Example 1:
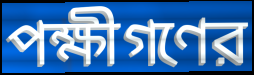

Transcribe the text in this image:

পক্ষীগণের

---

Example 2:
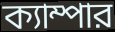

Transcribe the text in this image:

ক্যাম্পার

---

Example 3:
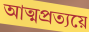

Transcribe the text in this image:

আত্মপ্রত্যয়ে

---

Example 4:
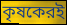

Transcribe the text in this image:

কৃষকেরই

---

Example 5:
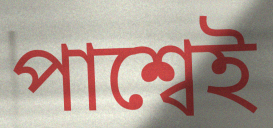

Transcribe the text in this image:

পাশ্বেই